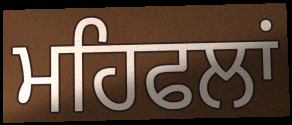
ਮਹਿਫਲਾਂ